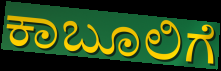
ಕಾಬೂಲಿಗೆ